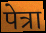
पेत्रा